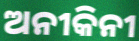
ଅନୀକିନୀ